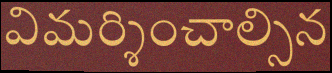
విమర్శించాల్సిన